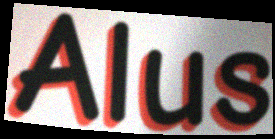
Alus